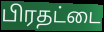
பிரதட்டை